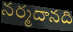
నర్మదానది